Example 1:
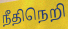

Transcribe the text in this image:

நீதிநெறி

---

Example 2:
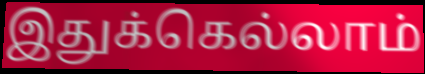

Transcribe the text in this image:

இதுக்கெல்லாம்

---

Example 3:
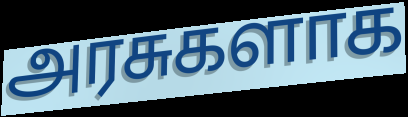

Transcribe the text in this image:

அரசுகளாக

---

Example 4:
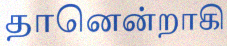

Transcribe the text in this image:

தானென்றாகி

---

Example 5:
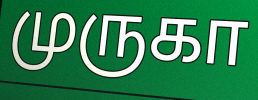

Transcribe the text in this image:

முருகா